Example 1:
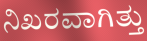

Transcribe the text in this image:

ನಿಖರವಾಗಿತ್ತು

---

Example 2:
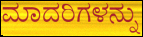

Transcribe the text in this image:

ಮಾದರಿಗಳನ್ನು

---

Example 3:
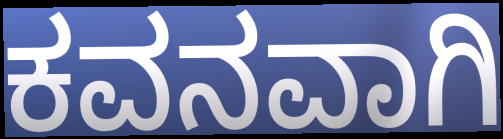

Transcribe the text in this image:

ಕವನವಾಗಿ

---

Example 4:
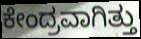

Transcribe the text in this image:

ಕೇಂದ್ರವಾಗಿತ್ತು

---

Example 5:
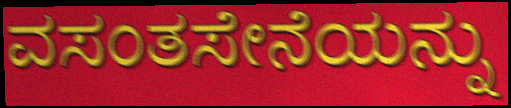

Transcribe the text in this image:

ವಸಂತಸೇನೆಯನ್ನು